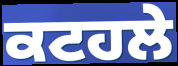
ਕਟਹਲੇ